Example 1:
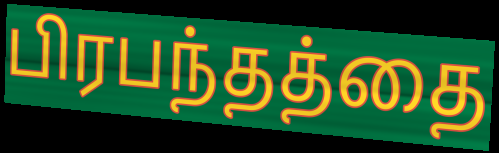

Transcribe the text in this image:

பிரபந்தத்தை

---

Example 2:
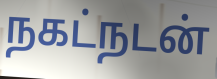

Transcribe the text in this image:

நகட்நடன்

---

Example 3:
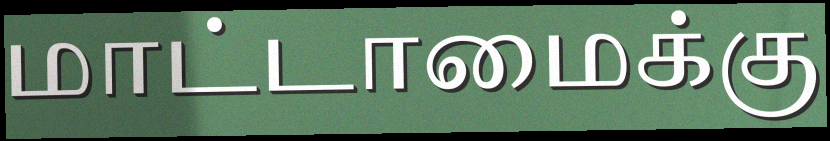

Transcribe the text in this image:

மாட்டாமைக்கு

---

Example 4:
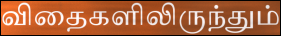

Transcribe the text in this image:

விதைகளிலிருந்தும்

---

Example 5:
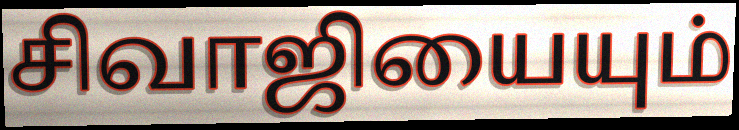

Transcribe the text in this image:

சிவாஜியையும்